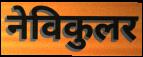
नेविकुलर